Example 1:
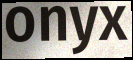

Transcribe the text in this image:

onyx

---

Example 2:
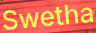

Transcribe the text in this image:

Swetha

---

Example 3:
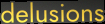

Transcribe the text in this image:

delusions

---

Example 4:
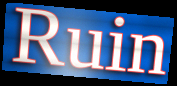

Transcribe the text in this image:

Ruin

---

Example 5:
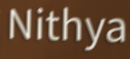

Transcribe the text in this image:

Nithya